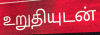
உறுதியுடன்